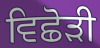
ਵਿਛੋੜੀ